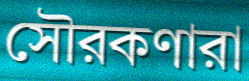
সৌরকণারা